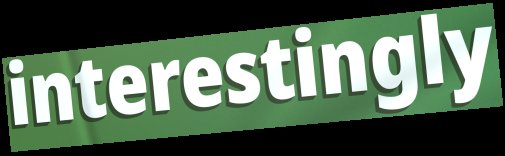
interestingly